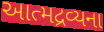
આત્મદ્રવ્યના